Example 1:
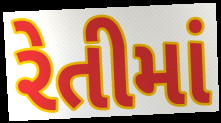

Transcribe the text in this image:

રેતીમાં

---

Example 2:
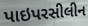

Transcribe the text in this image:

પાઇપરસીલીન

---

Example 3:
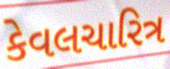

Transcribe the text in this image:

કેવલચારિત્ર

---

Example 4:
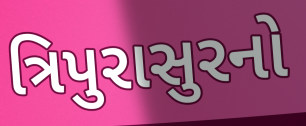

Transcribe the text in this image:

ત્રિપુરાસુરનો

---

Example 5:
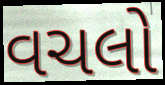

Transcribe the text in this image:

વચલો